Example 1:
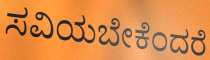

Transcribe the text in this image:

ಸವಿಯಬೇಕೆಂದರೆ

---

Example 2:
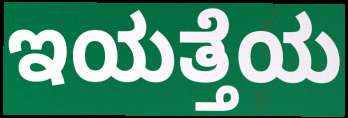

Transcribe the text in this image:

ಇಯತ್ತೆಯ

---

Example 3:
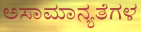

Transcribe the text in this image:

ಅಸಾಮಾನ್ಯತೆಗಳ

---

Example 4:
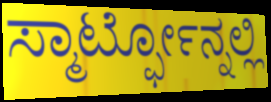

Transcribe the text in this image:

ಸ್ಮಾರ್ಟ್ಫೋನ್ನಲ್ಲಿ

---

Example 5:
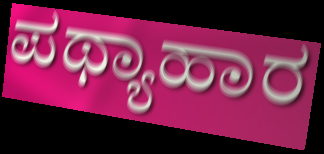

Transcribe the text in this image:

ಪಥ್ಯಾಹಾರ